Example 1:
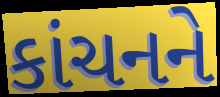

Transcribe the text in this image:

કાંચનને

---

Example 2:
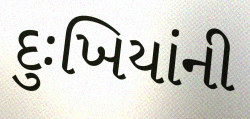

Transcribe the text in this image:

દુઃખિયાંની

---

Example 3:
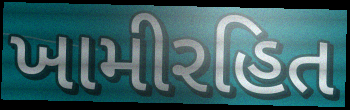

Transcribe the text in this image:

ખામીરહિત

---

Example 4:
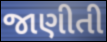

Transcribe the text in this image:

જાણીતી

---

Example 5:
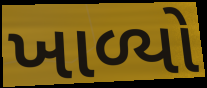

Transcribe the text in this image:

ખાળ્યો